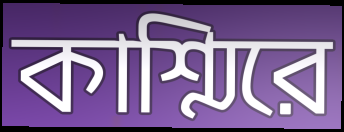
কাশ্মিরে